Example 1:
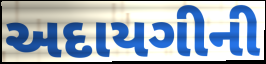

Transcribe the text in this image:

અદાયગીની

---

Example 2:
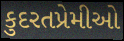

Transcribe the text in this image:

કુદરતપ્રેમીઓ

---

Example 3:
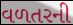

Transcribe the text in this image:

વળતરની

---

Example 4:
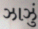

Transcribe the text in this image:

ઝાઝું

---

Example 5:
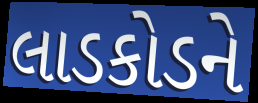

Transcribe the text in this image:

લાડકોડને